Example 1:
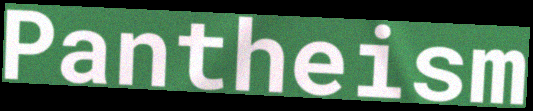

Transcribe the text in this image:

Pantheism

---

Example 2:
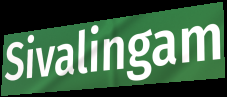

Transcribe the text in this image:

Sivalingam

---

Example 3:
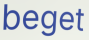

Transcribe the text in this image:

beget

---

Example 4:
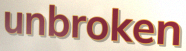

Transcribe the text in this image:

unbroken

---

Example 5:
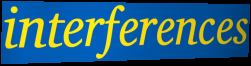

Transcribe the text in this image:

interferences